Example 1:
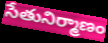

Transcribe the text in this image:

సేతునిర్మాణం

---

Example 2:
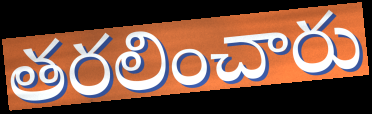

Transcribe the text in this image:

తరలించారు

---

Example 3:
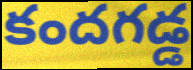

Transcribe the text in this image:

కందగడ్డ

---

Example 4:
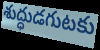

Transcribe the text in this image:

శుద్ధుడగుటకు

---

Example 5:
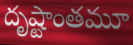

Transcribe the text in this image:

దృష్టాంతమూ